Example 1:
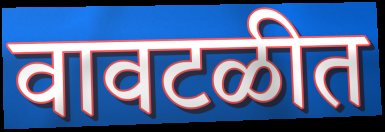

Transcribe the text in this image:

वावटळीत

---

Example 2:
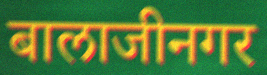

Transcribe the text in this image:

बालाजीनगर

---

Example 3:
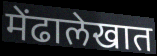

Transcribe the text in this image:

मेंढालेखात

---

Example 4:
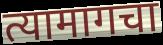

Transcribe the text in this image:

त्यामागचा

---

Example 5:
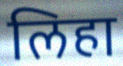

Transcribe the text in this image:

लिहा